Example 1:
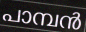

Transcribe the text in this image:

പാമ്പൻ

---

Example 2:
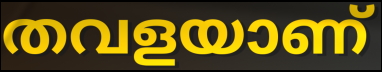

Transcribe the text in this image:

തവളയാണ്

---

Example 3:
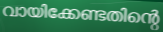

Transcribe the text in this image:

വായിക്കേണ്ടതിന്റെ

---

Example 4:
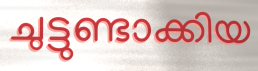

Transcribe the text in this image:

ചുട്ടുണ്ടാക്കിയ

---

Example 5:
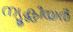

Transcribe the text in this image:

ന്യൂക്ലിയർ